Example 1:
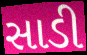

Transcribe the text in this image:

સાડી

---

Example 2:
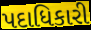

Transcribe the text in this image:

પદાધિકારી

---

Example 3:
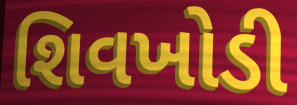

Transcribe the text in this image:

શિવખોડી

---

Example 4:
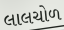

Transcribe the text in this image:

લાલચોળ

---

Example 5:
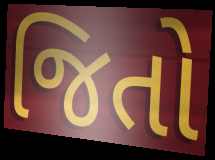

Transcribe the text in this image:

જિતો